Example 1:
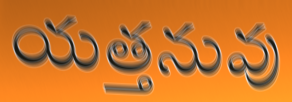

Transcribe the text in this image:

యత్తనువు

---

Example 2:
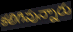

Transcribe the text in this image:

కలిగివున్నారు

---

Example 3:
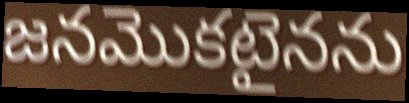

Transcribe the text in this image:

జనమొకటైనను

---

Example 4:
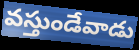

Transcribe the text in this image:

వస్తుండేవాడు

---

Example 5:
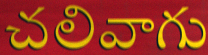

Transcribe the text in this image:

చలివాగు